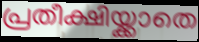
പ്രതീക്ഷിയ്ക്കാതെ